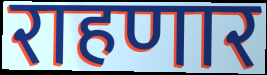
राहणार